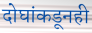
दोघांकडूनही